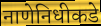
नाणेनिधीकडे